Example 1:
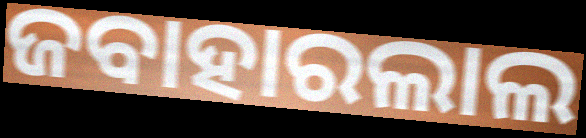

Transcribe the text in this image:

ଜବାହାରଲାଲ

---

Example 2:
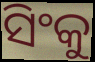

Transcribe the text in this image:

ସିଂକୁ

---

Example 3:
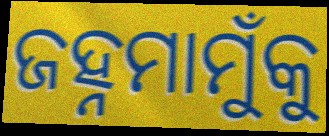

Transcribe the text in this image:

ଜହ୍ନମାମୁଁକୁ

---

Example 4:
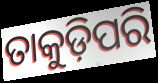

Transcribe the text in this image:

ତାକୁଡ଼ିପରି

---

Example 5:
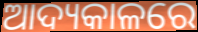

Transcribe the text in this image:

ଆଦ୍ୟକାଳରେ